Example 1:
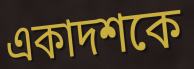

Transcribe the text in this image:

একাদশকে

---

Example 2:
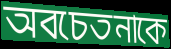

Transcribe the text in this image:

অবচেতনাকে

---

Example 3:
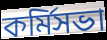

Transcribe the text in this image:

কর্মিসভা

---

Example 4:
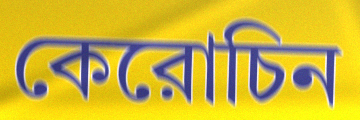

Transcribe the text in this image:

কেরোচিন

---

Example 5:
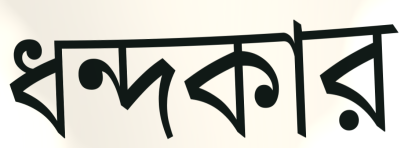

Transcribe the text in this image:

ধন্দকার